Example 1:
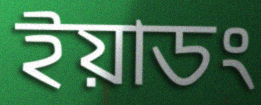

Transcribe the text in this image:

ইয়াডং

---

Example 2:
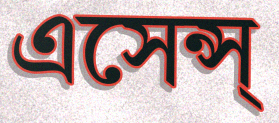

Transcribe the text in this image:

এসেন্স্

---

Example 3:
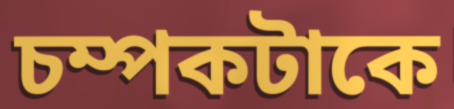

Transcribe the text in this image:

চম্পকটাকে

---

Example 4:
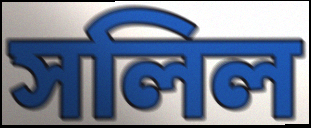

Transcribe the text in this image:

সলিল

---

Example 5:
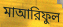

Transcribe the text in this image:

মাআরিফুল